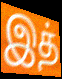
இத்